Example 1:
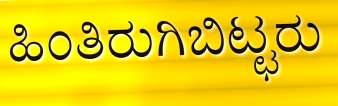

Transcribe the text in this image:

ಹಿಂತಿರುಗಿಬಿಟ್ಟರು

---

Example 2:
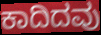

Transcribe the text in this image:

ಕಾದಿದವು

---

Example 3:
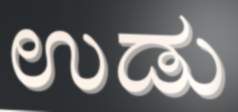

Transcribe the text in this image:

ಉಡು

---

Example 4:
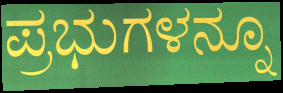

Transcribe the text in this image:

ಪ್ರಭುಗಳನ್ನೂ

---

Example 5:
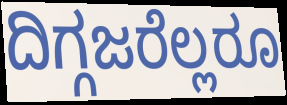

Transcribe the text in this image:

ದಿಗ್ಗಜರೆಲ್ಲರೂ